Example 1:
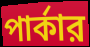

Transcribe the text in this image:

পার্কার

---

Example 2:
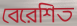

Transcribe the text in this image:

বেরেশিত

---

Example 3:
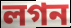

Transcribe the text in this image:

লগন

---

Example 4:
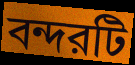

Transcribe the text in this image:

বন্দরটি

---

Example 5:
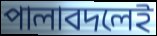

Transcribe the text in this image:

পালাবদলেই